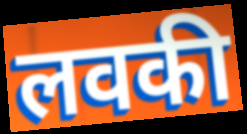
लवकी